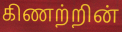
கிணற்றின்